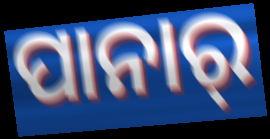
ପାନାର୍